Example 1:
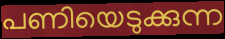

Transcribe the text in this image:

പണിയെടുക്കുന്ന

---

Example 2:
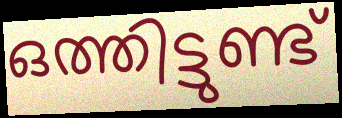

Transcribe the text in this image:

ഒത്തിട്ടുണ്ട്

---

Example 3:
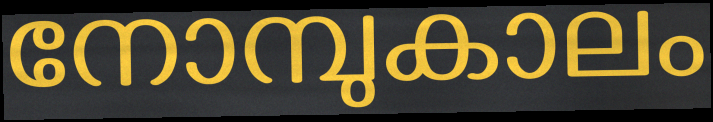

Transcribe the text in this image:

നോമ്പുകാലം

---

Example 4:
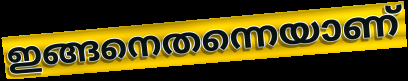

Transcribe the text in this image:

ഇങ്ങനെതന്നെയാണ്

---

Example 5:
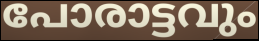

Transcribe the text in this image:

പോരാട്ടവും